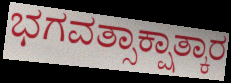
ಭಗವತ್ಸಾಕ್ಷಾತ್ಕಾರ